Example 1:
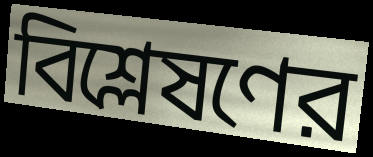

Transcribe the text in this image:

বিশ্লেষণের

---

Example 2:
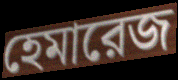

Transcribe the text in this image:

হেমারেজ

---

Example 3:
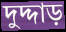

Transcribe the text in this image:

দুদ্দাড়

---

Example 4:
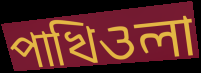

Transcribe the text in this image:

পাখিওলা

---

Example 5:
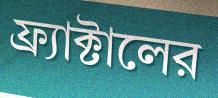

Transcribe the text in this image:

ফ্র্যাক্টালের